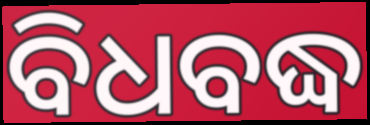
ବିଧବଦ୍ଧ